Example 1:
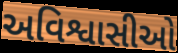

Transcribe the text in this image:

અવિશ્વાસીઓ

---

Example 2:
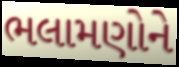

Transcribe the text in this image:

ભલામણોને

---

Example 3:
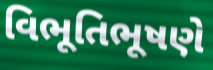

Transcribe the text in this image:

વિભૂતિભૂષણે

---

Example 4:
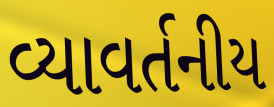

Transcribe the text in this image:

વ્યાવર્તનીય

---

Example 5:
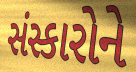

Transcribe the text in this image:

સંસ્કારોને